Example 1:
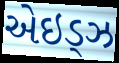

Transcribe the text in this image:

એઇડ્ઝ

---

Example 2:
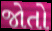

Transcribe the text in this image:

જોતો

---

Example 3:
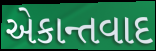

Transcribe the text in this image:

એકાન્તવાદ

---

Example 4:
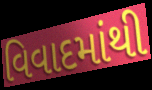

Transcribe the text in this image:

વિવાદમાંથી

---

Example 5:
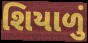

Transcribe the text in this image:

શિયાળું